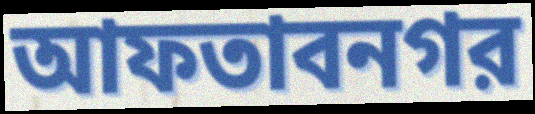
আফতাবনগর